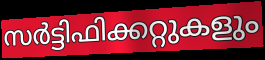
സർട്ടിഫിക്കറ്റുകളും